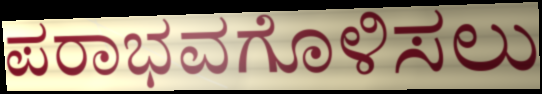
ಪರಾಭವಗೊಳಿಸಲು